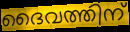
ദൈവത്തിന്